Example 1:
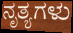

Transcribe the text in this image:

ನೃತ್ಯಗಳು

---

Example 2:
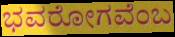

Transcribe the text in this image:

ಭವರೋಗವೆಂಬ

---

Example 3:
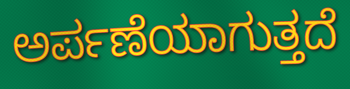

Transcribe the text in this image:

ಅರ್ಪಣೆಯಾಗುತ್ತದೆ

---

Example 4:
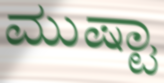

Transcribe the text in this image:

ಮುಷ್ಟಾ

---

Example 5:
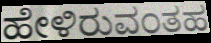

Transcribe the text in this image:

ಹೇಳಿರುವಂತಹ